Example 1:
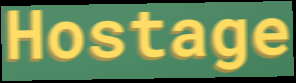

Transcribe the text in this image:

Hostage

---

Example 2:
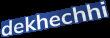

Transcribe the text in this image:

dekhechhi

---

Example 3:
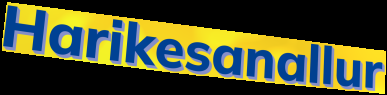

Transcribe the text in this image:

Harikesanallur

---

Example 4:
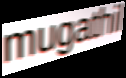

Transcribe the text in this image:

mugathil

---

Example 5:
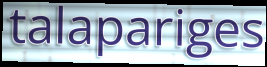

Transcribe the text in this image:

talapariges